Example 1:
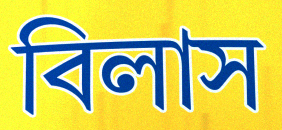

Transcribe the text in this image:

বিলাস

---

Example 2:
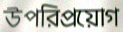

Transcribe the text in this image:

উপরিপ্রয়োগ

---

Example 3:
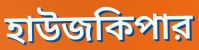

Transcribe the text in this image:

হাউজকিপার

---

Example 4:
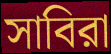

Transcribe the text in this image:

সাবিরা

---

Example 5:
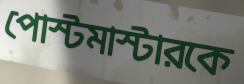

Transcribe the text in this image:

পোস্টমাস্টারকে